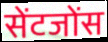
सेंटजोंस